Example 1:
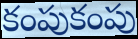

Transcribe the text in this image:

కంపుకంపు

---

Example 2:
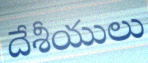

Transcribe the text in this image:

దేశీయులు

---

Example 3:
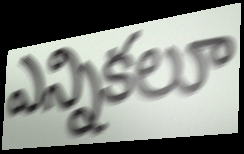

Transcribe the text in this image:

ఎన్నికలూ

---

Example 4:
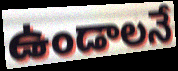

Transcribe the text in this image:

ఉండాలనే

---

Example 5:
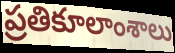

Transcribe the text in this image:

ప్రతికూలాంశాలు